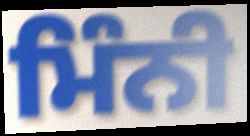
ਮਿੰਨੀ